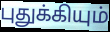
புதுக்கியும்